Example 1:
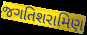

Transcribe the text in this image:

જગતિશરામિણ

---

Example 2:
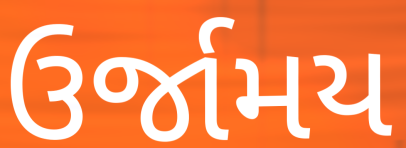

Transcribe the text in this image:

ઉર્જામય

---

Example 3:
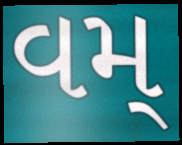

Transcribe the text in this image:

વમ્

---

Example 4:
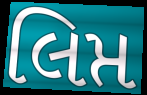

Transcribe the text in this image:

લિપ્ત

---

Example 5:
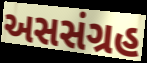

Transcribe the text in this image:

અસસંગ્રહ